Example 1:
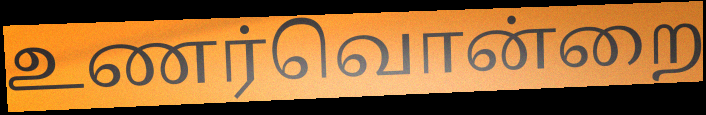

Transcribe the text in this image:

உணர்வொன்றை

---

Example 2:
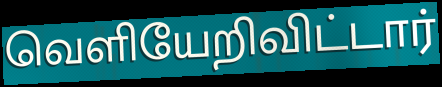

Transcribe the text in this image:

வெளியேறிவிட்டார்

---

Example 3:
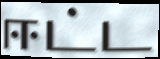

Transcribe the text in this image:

ஈட்ட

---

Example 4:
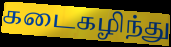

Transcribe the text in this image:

கடைகழிந்து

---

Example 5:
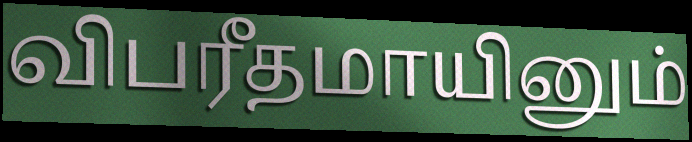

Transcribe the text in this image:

விபரீதமாயினும்